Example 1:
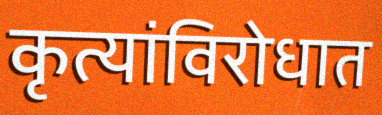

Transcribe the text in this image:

कृत्यांविरोधात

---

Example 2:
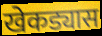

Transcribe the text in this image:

खेकड्यास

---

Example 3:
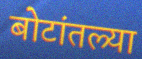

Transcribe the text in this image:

बोटांतल्या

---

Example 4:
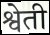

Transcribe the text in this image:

श्वेती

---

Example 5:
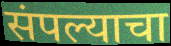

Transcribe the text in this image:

संपल्याचा